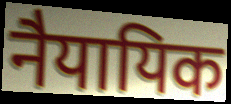
नैयायिक